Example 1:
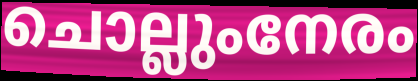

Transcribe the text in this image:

ചൊല്ലുംനേരം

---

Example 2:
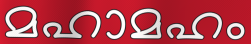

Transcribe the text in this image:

മഹാമഹം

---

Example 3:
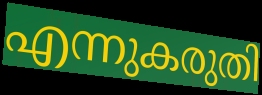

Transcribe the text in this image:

എന്നുകരുതി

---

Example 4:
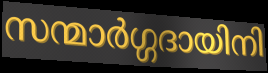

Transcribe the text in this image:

സന്മാർഗ്ഗദായിനി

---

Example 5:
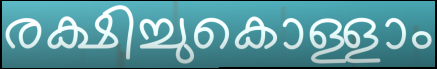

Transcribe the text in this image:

രക്ഷിച്ചുകൊള്ളാം